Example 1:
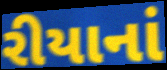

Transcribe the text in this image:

રીયાનાં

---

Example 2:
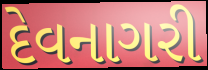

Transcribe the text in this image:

દેવનાગરી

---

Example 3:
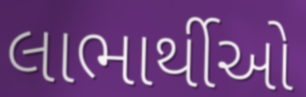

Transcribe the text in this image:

લાભાર્થીઓ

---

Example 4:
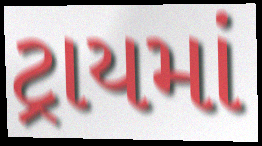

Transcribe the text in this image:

ટ્રાયમાં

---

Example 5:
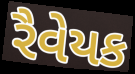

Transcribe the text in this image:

રૈવેયક